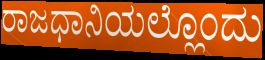
ರಾಜಧಾನಿಯಲ್ಲೊಂದು